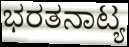
ಭರತನಾಟ್ಯ